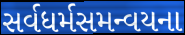
સર્વધર્મસમન્વયના